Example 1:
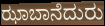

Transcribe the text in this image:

ಝಾಬಾನೆದುರು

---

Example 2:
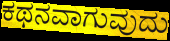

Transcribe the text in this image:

ಕಥನವಾಗುವುದು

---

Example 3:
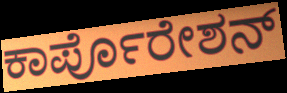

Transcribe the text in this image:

ಕಾರ್ಪೊರೇಶನ್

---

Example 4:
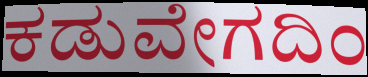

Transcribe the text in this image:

ಕಡುವೇಗದಿಂ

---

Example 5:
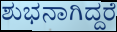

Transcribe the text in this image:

ಶುಭನಾಗಿದ್ದರೆ